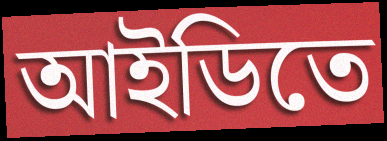
আইডিতে